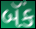
બૅંક